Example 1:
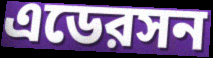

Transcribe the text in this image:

এডেরসন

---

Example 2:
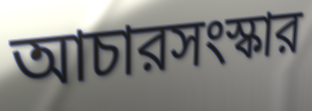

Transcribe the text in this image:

আচারসংস্কার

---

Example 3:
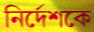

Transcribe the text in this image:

নির্দেশকে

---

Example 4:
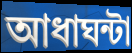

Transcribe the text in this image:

আধাঘন্টা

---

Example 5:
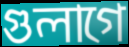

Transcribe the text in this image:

গুলাগে